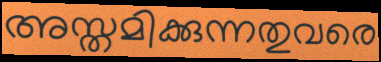
അസ്തമിക്കുന്നതുവരെ